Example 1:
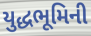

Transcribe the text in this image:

યુદ્ધભૂમિની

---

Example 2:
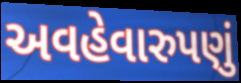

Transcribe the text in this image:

અવહેવારુપણું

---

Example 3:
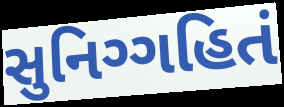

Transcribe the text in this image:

સુનિગ્ગહિતં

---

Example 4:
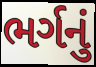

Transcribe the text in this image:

ભર્ગનું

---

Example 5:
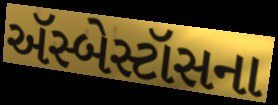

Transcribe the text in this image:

ઍસ્બેસ્ટૉસના